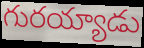
గురయ్యాడు